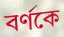
বর্ণকে